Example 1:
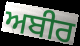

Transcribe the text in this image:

ਅਬੀਰ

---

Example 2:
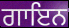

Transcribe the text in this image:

ਗਾਇਨ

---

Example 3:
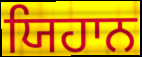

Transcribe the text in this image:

ਯਿਹਾਨ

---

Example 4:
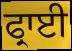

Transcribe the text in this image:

ਫ੍ਰਾਈ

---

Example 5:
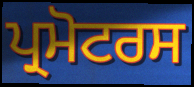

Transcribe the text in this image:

ਪ੍ਰਮੋਟਰਸ